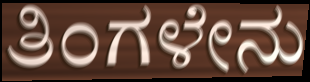
ತಿಂಗಳೇನು